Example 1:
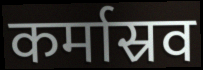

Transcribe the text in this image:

कर्मास्रव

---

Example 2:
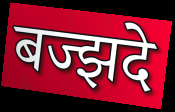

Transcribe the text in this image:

बज्झदे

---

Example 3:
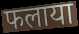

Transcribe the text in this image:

फलाया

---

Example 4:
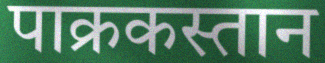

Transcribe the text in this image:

पाक्रकस्तान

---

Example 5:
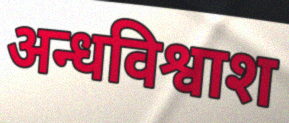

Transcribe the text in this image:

अन्धविश्वाश